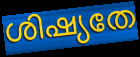
ശിഷ്യതേ